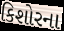
કિશોરના